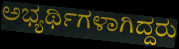
ಅಭ್ಯರ್ಥಿಗಳಾಗಿದ್ದರು